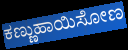
ಕಣ್ಣುಹಾಯಿಸೋಣ